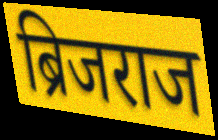
ब्रिजराज